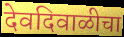
देवदिवाळीचा